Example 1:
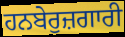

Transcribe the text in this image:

ਹਨਬੇਰੁਜ਼ਗਾਰੀ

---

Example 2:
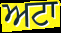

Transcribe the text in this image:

ਅਟਾ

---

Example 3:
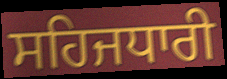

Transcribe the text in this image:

ਸਹਿਜਧਾਰੀ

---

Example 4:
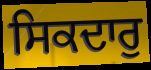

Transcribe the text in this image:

ਸਿਕਦਾਰੁ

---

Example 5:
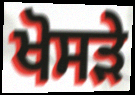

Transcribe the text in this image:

ਖੋਸੜੇ